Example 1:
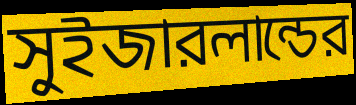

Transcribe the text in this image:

সুইজারলান্ডের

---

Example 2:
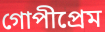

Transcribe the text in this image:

গোপীপ্রেম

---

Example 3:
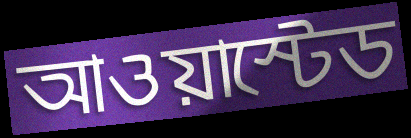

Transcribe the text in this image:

আওয়াস্টেড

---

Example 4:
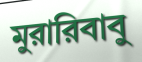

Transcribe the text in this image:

মুরারিবাবু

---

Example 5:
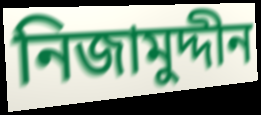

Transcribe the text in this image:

নিজামুদ্দীন